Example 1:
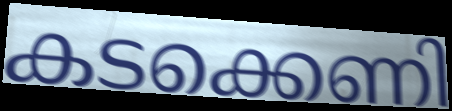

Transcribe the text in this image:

കടക്കെണി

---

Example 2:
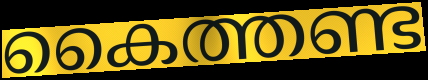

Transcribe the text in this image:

കൈത്തണ്ട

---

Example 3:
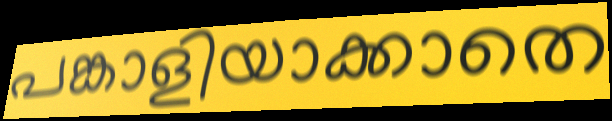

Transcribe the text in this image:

പങ്കാളിയാക്കാതെ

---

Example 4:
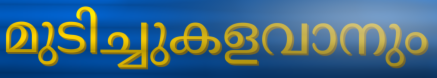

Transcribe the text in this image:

മുടിച്ചുകളവാനും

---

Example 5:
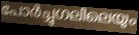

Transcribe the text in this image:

പോർച്ചുഗലിലെയും